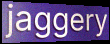
jaggery